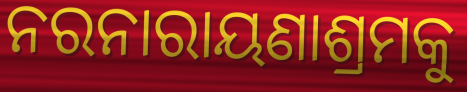
ନରନାରାୟଣାଶ୍ରମକୁ